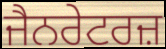
ਜੈਨਰੇਟਰਜ਼